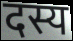
दस्य